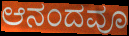
ಆನಂದವೂ